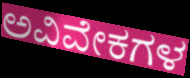
ಅವಿವೇಕಗಳ